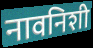
नावनिशी